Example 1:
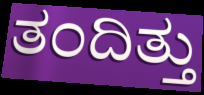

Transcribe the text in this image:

ತಂದಿತ್ತು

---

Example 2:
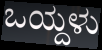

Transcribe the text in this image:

ಒಯ್ದಳು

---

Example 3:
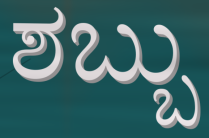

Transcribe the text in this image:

ಶಬ್ಬು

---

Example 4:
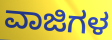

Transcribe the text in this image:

ವಾಜಿಗಳ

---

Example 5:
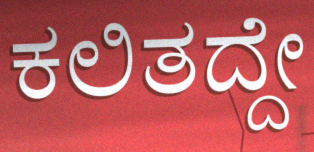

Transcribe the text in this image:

ಕಲಿತದ್ದೇ